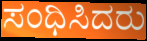
ಸಂಧಿಸಿದರು